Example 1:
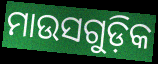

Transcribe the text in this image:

ମାଉସଗୁଡ଼ିକ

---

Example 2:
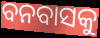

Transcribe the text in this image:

ବନବାସକୁ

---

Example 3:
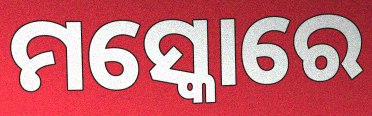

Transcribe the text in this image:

ମସ୍କୋରେ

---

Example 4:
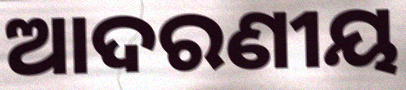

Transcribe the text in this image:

ଆଦରଣୀୟ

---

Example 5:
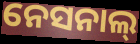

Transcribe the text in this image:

ନେସନାଲ୍